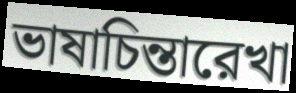
ভাষাচিন্তারেখা